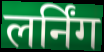
लर्निंग